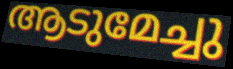
ആടുമേച്ചു